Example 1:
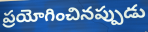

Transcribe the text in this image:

ప్రయోగించినప్పుడు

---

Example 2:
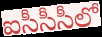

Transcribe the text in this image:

ఐసీసీసీలో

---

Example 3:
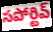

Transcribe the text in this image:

సపోర్టివ్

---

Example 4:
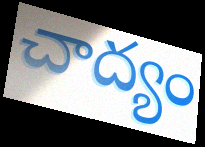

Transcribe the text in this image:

చాద్యం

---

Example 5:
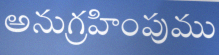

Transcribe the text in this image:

అనుగ్రహింపుము